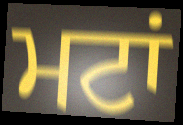
ਮਟਾਂ